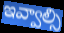
ఇవ్వాల్సి